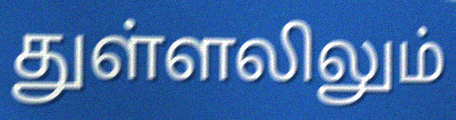
துள்ளலிலும்